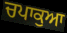
ਚਪਾਕੁਆ